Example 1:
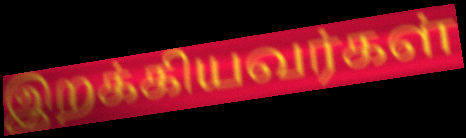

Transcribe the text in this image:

இறக்கியவர்கள்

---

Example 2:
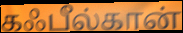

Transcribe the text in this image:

கஃபீல்கான்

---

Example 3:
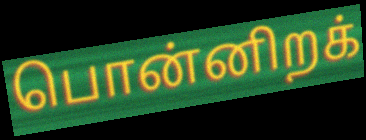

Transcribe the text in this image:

பொன்னிறக்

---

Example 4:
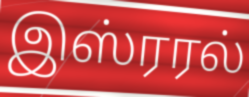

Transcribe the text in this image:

இஸ்ரரல்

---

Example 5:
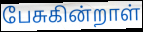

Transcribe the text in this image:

பேசுகின்றாள்